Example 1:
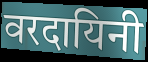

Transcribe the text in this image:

वरदायिनी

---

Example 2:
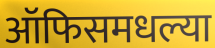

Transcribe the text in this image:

ऑफिसमधल्या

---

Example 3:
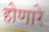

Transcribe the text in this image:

होणारे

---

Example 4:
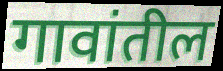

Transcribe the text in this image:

गावांतील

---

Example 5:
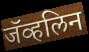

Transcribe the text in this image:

जॅव्हलिन